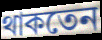
থাকতেন